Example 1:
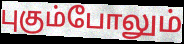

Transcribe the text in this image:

புகும்போலும்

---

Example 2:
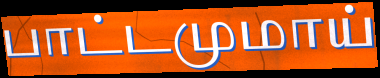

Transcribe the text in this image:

பாட்டமுமாய்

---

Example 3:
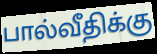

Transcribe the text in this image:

பால்வீதிக்கு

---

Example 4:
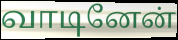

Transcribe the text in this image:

வாடினேன்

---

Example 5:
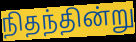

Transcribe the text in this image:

நிதந்தின்று